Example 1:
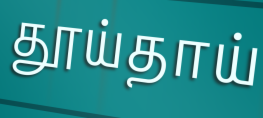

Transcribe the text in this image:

தூய்தாய்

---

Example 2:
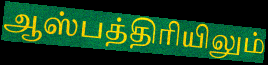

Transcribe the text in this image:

ஆஸ்பத்திரியிலும்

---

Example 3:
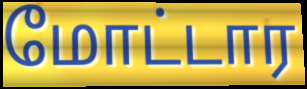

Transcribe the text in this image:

மோட்டார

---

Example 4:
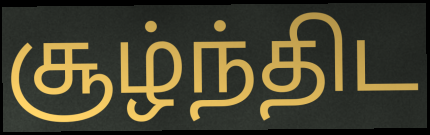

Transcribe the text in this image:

சூழ்ந்திட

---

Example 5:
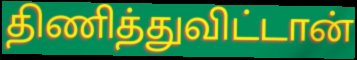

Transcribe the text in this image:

திணித்துவிட்டான்